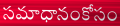
సమాధానంకోసం